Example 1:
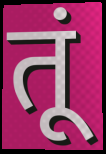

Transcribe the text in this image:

तूं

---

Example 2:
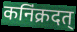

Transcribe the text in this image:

कनि॑क्रदत्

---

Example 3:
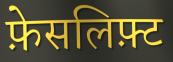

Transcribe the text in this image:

फ़ेसलिफ़्ट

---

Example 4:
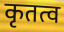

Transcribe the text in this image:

कृतत्व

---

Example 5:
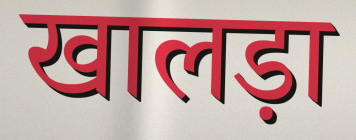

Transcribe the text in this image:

खालड़ा